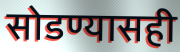
सोडण्यासही